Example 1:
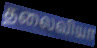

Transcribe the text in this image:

தலைவியா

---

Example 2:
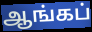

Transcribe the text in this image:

ஆங்கப்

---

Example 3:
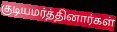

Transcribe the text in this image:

குடியமர்த்தினார்கள்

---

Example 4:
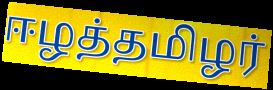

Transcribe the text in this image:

ஈழத்தமிழர்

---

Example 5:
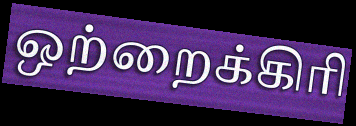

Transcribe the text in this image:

ஒற்றைக்கிரி